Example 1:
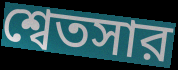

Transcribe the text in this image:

শ্বেতসার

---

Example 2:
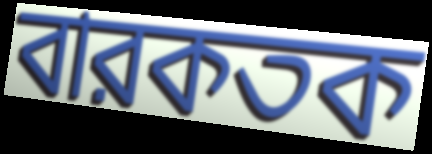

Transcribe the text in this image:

বারকতক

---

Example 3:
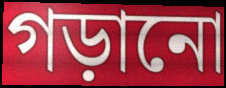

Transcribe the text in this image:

গড়ানো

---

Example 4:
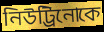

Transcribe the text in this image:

নিউট্রিনোকে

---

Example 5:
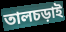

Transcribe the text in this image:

তালচড়াই